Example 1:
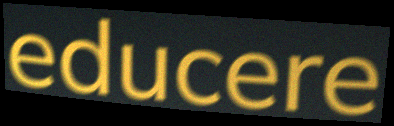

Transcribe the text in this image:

educere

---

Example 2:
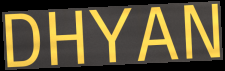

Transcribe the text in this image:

DHYAN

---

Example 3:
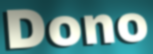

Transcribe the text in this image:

Dono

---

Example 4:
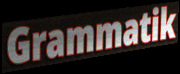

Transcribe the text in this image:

Grammatik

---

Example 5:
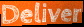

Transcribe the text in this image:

Deliver